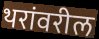
थरांवरील